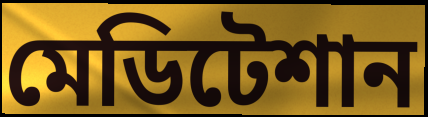
মেডিটেশান